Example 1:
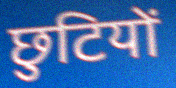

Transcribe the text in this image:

छुटियों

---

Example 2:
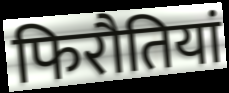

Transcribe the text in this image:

फिरौतियां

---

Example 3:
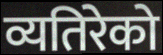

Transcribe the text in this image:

व्यतिरेको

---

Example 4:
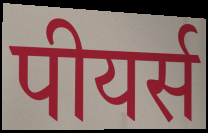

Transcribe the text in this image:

पीयर्स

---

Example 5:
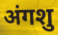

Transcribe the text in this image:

अंगशु